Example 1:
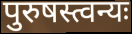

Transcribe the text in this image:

पुरुषस्त्वन्यः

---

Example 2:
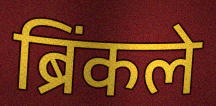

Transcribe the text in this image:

ब्रिंकले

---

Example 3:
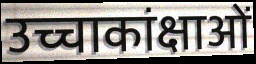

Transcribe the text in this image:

उच्चाकांक्षाओं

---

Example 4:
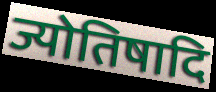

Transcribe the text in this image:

ज्योतिषादि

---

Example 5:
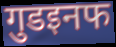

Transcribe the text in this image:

गुडइनफ